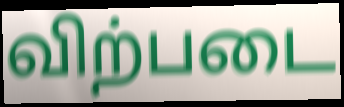
விற்படை